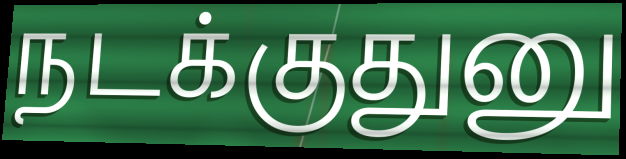
நடக்குதுனு